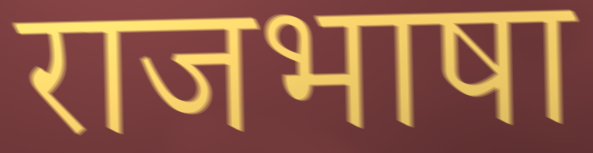
राजभाषा